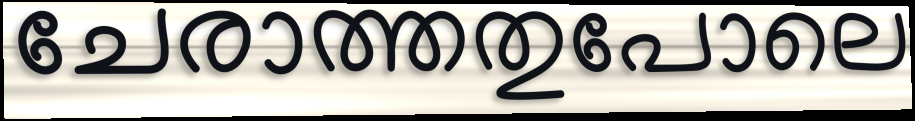
ചേരാത്തതുപോലെ